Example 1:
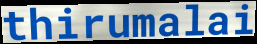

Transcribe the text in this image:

thirumalai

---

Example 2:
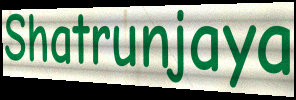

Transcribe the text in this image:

Shatrunjaya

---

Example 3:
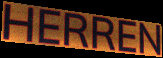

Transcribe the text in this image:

HERREN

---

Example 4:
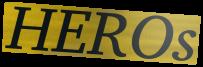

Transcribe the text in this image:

HEROs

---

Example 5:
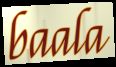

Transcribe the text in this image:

baala